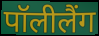
पॉलीलैंग